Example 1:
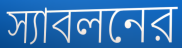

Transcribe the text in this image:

স্যাবলনের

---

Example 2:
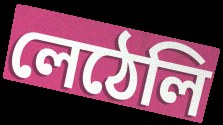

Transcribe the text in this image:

লেঠেলি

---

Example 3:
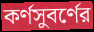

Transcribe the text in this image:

কর্ণসুবর্ণের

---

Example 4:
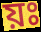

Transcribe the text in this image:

য়ঃ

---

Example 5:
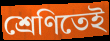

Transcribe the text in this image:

শ্রেণিতেই